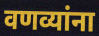
वणव्यांना